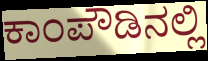
ಕಾಂಪೌಡಿನಲ್ಲಿ